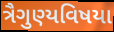
ત્રૈગુણ્યવિષયા